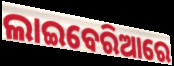
ଲାଇବେରିଆରେ